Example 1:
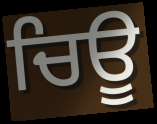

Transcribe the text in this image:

ਚਿਊ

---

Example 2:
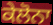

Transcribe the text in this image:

ਕੇਲੋਨਾ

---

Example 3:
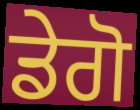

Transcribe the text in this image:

ਡੇਗੋ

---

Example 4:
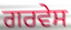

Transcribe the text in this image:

ਗਰਵੇਸ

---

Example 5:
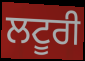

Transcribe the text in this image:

ਲਟੂਰੀ